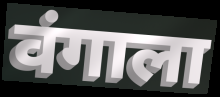
वंगाला